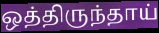
ஒத்திருந்தாய்